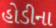
હોડીના